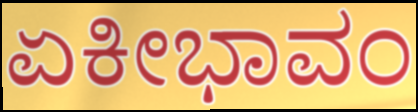
ಏಕೀಭಾವಂ